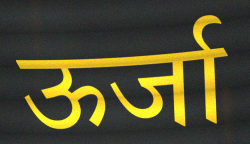
ऊर्जा